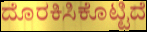
ದೊರಕಿಸಿಕೊಟ್ಟಿದೆ